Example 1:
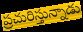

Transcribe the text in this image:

ప్రచురిస్తున్నాడు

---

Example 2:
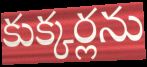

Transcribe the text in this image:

కుక్కర్లను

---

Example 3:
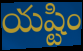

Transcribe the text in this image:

యష్టిం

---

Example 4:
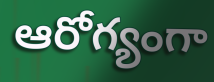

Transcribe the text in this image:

ఆరోగ్యంగా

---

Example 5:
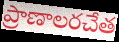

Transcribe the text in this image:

ప్రాణాలరచేత